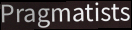
Pragmatists